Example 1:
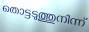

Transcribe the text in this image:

തൊട്ടടുത്തുനിന്ന്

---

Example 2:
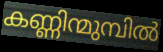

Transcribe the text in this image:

കണ്ണിന്മുമ്പിൽ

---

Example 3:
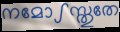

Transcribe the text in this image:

നമോഽസ്തുതേ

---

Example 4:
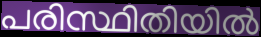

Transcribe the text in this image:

പരിസ്ഥിതിയിൽ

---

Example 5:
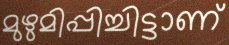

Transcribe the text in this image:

മുഴുമിപ്പിച്ചിട്ടാണ്